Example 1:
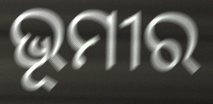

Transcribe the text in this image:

ଭୂମୀର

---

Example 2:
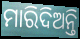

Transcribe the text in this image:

ମାରିଦିଅନ୍ତି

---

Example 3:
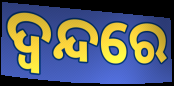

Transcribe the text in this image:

ଦ୍ଵନ୍ଦରେ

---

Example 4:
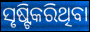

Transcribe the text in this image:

ସୃଷ୍ଟିକରିଥିବା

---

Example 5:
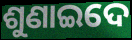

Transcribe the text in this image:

ଶୁଣାଇଦେ